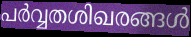
പർവ്വതശിഖരങ്ങൾ